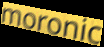
moronic